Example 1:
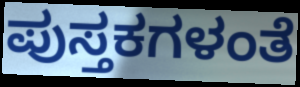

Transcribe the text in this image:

ಪುಸ್ತಕಗಳಂತೆ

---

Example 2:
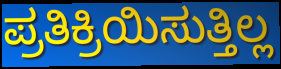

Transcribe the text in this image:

ಪ್ರತಿಕ್ರಿಯಿಸುತ್ತಿಲ್ಲ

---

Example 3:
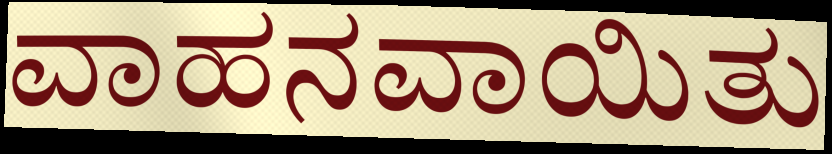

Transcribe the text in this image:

ವಾಹನವಾಯಿತು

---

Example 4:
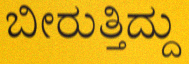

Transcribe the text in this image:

ಬೀರುತ್ತಿದ್ದು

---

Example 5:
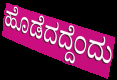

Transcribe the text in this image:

ಹೊಡೆದದ್ದೆಂದು